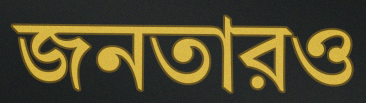
জনতারও